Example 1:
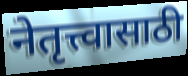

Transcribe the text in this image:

नेतृत्त्वासाठी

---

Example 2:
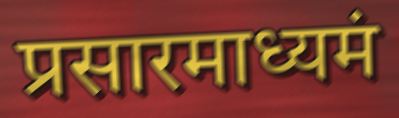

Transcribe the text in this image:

प्रसारमाध्यमं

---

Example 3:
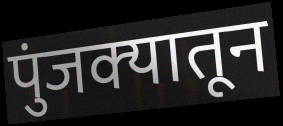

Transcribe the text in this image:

पुंजक्यातून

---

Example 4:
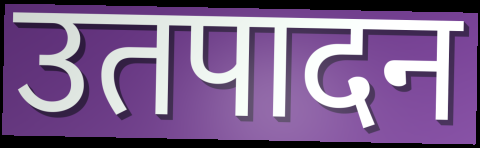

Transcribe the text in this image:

उतपादन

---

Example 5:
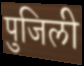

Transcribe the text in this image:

पुजिली